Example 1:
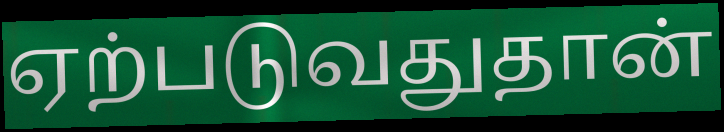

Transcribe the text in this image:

ஏற்படுவதுதான்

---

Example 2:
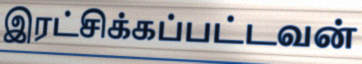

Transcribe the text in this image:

இரட்சிக்கப்பட்டவன்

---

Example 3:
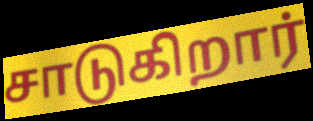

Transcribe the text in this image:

சாடுகிறார்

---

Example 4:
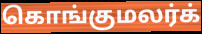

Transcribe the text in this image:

கொங்குமலர்க்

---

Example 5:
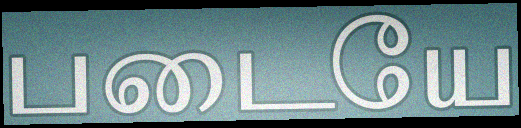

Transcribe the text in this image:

படையே